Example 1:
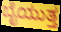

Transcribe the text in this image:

ಬೈಯುತ್ತ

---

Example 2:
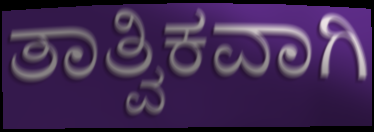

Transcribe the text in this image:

ತಾತ್ವಿಕವಾಗಿ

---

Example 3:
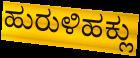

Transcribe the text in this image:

ಹುರುಳಿಹಕ್ಲು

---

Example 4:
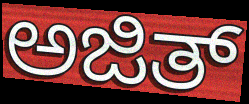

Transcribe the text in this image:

ಅಜಿತ್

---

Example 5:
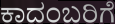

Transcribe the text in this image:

ಕಾದಂಬರಿಗೆ